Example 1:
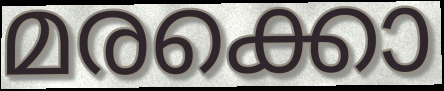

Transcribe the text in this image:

മരക്കൊ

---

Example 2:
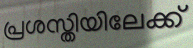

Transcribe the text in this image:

പ്രശസ്തിയിലേക്ക്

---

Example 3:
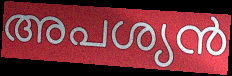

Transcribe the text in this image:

അപശ്യൻ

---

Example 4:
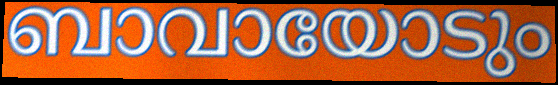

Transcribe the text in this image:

ബാവായോടും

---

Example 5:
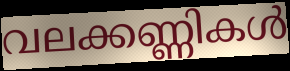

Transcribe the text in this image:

വലക്കണ്ണികൾ